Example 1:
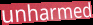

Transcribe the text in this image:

unharmed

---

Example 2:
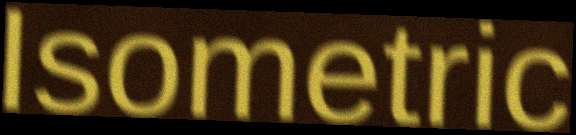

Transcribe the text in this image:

Isometric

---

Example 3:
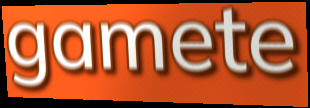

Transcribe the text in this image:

gamete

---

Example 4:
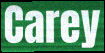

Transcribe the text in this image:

Carey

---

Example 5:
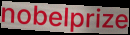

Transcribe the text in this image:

nobelprize